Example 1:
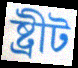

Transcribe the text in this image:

ষ্ট্ৰীট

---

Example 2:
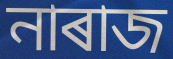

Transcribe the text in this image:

নাৰাজ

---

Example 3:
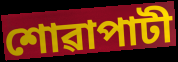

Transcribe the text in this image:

শোৱাপাটী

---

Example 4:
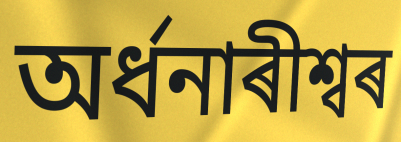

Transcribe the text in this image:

অৰ্ধনাৰীশ্বৰ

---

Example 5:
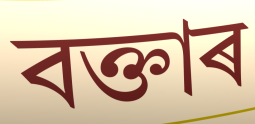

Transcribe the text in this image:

বক্তাৰ